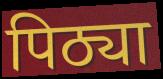
पिठ्या